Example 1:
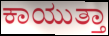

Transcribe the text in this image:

ಕಾಯುತ್ತಾ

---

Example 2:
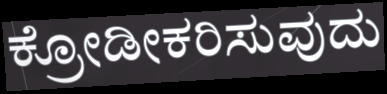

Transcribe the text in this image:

ಕ್ರೋಡೀಕರಿಸುವುದು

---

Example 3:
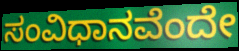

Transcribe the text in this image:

ಸಂವಿಧಾನವೆಂದೇ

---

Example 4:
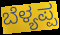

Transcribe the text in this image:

ಬೆಳ್ಯಪ್ಪ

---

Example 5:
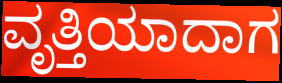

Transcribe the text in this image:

ವೃತ್ತಿಯಾದಾಗ